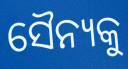
ସୈନ୍ୟକୁ